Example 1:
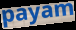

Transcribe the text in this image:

payam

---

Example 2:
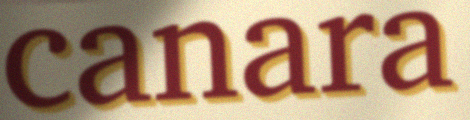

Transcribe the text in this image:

canara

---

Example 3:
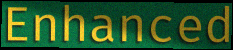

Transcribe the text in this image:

Enhanced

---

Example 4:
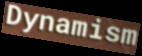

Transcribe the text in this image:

Dynamism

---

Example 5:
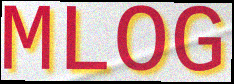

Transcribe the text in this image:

MLOG